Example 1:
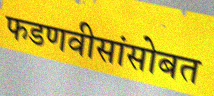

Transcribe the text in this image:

फडणवीसांसोबत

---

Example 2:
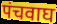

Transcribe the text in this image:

पंचवाघ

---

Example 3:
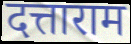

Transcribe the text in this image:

दत्ताराम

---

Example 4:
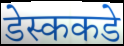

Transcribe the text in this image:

डेस्ककडे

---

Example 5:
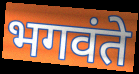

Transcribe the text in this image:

भगवंते